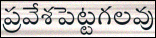
ప్రవేశపెట్టగలవు